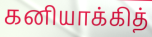
கனியாக்கித்